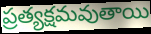
ప్రత్యక్షమవుతాయి